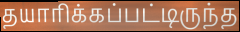
தயாரிக்கப்பட்டிருந்த